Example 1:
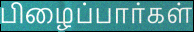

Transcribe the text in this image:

பிழைப்பார்கள்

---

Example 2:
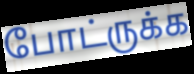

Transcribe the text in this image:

போட்ருக்க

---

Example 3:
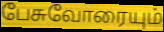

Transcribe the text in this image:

பேசுவோரையும்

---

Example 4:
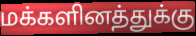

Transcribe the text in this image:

மக்களினத்துக்கு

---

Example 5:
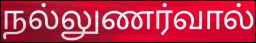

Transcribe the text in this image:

நல்லுணர்வால்